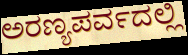
ಅರಣ್ಯಪರ್ವದಲ್ಲಿ